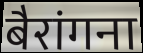
बैरांगना